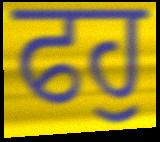
ਫਹੁ